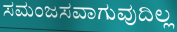
ಸಮಂಜಸವಾಗುವುದಿಲ್ಲ